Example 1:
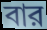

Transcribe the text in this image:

বার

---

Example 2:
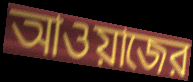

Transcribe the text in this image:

আওয়াজের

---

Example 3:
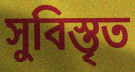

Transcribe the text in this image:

সুবিস্তৃত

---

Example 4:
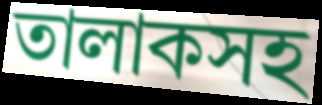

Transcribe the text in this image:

তালাকসহ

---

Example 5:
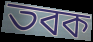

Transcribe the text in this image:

তবক